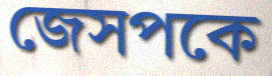
জেসপকে